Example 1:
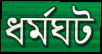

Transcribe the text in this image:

ধর্মঘট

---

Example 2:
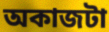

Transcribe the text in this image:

অকাজটা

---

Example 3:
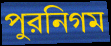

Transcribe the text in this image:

পুরনিগম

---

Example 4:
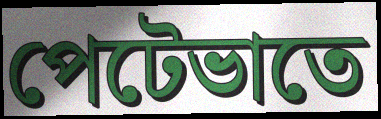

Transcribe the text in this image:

পেটেভাতে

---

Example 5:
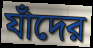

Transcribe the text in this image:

যাঁদের